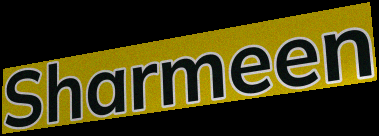
Sharmeen